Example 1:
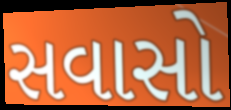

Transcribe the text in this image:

સવાસો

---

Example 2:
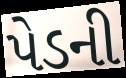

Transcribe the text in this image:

પેડની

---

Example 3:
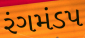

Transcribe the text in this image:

રંગમંડપ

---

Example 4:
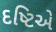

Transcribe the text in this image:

દષ્ટિએ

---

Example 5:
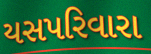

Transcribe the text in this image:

યસપરિવારા